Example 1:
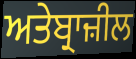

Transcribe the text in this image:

ਅਤੇਬ੍ਰਾਜ਼ੀਲ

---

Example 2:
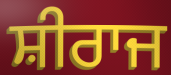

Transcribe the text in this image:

ਸ਼ੀਰਾਜ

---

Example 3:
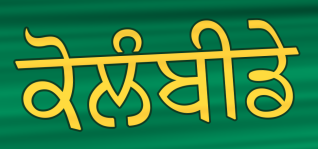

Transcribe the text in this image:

ਕੋਲੰਬੀਡੇ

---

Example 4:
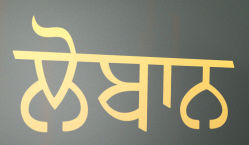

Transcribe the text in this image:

ਲੋਬਾਨ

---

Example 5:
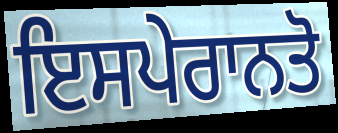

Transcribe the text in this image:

ਇਸਪੇਰਾਨਤੋ